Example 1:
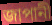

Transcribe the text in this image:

জাপানী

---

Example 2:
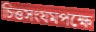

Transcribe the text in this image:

চিত্তসংযমপক্ষে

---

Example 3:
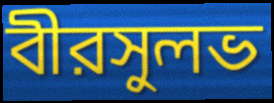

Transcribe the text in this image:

বীরসুলভ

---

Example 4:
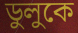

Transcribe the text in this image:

ডুলুকে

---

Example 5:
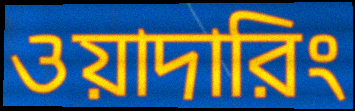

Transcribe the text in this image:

ওয়াদারিং